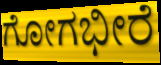
ಗೋಗಭೀರೆ